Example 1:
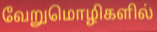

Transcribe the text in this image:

வேறுமொழிகளில்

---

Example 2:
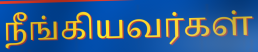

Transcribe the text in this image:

நீங்கியவர்கள்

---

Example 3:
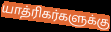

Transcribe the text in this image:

யாத்ரிகர்களுக்கு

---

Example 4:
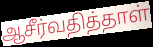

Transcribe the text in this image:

ஆசீர்வதித்தாள்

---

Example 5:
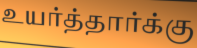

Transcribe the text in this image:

உயர்த்தார்க்கு